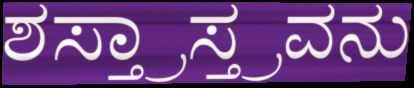
ಶಸ್ತ್ರಾಸ್ತ್ರವನು